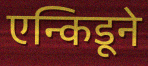
एन्किडूने